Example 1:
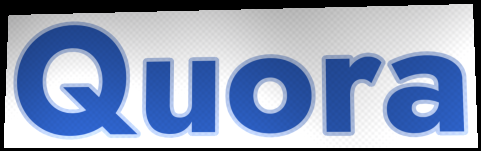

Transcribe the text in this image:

Quora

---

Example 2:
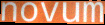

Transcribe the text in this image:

novum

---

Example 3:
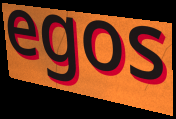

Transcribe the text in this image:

egos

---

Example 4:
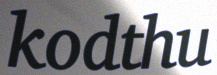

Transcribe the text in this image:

kodthu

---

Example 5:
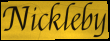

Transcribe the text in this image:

Nickleby